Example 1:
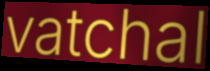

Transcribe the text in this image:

vatchal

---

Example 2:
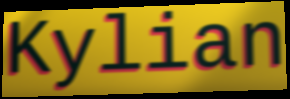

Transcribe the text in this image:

Kylian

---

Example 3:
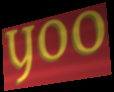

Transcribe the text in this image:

yoo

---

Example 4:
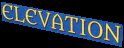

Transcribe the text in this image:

ELEVATION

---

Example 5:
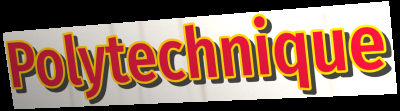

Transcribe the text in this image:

Polytechnique